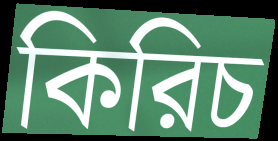
কিরিচ